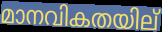
മാനവികതയില്